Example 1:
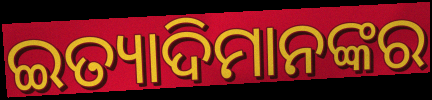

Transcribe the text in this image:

ଇତ୍ୟାଦିମାନଙ୍କର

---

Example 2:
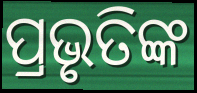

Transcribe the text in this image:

ପ୍ରଭୃତିଙ୍କ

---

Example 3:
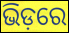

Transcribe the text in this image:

ଭିଡ଼ରେ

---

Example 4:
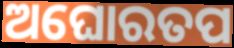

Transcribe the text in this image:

ଅଘୋରତପ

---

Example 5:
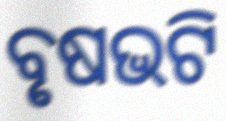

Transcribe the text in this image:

ବୃଷଭଟି